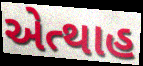
એત્થાહ